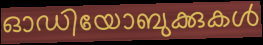
ഓഡിയോബുക്കുകൾ